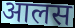
आलस